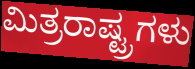
ಮಿತ್ರರಾಷ್ಟ್ರಗಳು